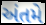
અંતમે